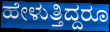
ಹೇಳುತ್ತಿದ್ದರೂ